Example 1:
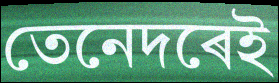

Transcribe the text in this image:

তেনেদৰেই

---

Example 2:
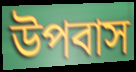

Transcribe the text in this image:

উপবাস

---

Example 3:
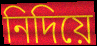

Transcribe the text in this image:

নিদিয়ে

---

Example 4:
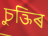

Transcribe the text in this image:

চুক্তিৰ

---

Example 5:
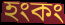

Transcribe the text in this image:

হংকং